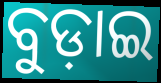
ବୁଡ଼ାଇ